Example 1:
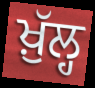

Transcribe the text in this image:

ਖ਼ੁੱਲ੍ਹ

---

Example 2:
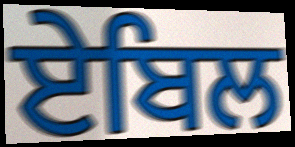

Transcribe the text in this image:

ਏਬਿਲ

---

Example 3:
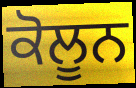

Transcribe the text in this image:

ਕੋਲੂਨ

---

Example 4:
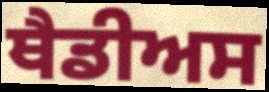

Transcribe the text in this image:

ਥੈਡੀਅਸ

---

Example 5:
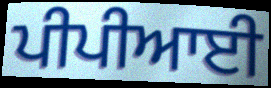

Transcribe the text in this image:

ਪੀਪੀਆਈ